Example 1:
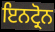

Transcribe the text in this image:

ਇਨਟ੍ਰੋਨ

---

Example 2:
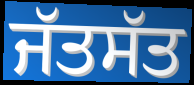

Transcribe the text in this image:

ਜੱਤਸੱਤ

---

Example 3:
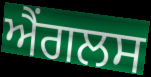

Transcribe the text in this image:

ਐਂਗਲਸ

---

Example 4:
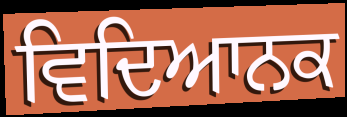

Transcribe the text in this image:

ਵਿਦਿਆਨਕ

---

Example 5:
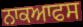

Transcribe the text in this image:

ਨਾਕਆਫਸ